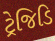
ટ્રેજિડિ